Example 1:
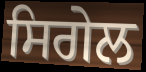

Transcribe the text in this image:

ਸਿਗੇਲ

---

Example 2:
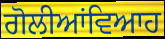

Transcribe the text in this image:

ਗੋਲੀਆਂਵਿਆਹ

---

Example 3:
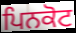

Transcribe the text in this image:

ਪਿਨਕੋਟ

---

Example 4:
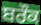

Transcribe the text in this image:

ਬਰੌਕ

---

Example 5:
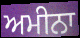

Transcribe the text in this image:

ਅਮੀਨਾ